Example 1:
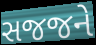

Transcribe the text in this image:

સજજને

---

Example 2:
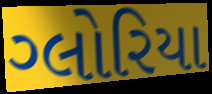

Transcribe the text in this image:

ગ્લોરિયા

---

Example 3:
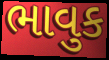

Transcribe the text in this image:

ભાવુક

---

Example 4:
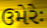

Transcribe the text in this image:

ઉમેરેઃ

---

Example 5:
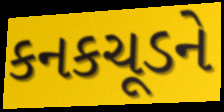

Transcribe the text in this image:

કનકચૂડને